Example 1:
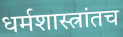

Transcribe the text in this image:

धर्मशास्त्रांतच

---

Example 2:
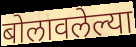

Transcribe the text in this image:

बोलावलेल्या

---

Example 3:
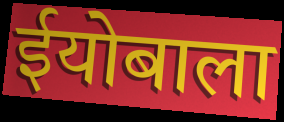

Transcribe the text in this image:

ईयोबाला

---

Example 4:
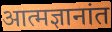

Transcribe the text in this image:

आत्मज्ञानांत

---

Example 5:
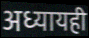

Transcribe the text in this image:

अध्यायही